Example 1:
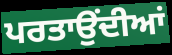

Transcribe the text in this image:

ਪਰਤਾਉਂਦੀਆਂ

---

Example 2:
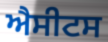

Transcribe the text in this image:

ਐਸੀਟਸ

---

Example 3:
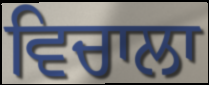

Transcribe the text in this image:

ਵਿਚਾਲਾ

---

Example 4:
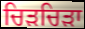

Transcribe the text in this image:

ਚਿੜਚਿੜਾ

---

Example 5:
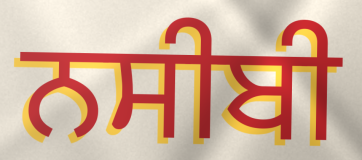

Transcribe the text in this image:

ਨਸੀਬੀ